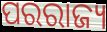
ପରରାଜ୍ୟ